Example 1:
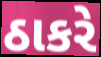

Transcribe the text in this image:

ઠાકરે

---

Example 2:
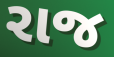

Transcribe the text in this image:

રાજ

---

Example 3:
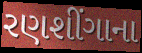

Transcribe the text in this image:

રણશીંગાના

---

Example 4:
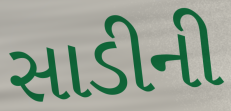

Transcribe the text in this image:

સાડીની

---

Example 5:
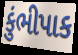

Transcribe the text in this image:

કુંભીપાક